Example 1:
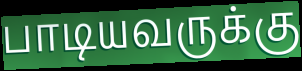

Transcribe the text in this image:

பாடியவருக்கு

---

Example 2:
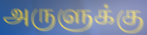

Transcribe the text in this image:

அருளுக்கு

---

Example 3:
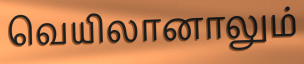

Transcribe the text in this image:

வெயிலானாலும்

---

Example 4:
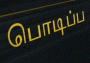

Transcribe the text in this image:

பொடிப்ப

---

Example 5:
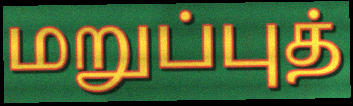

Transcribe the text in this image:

மறுப்புத்